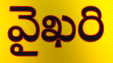
వైఖరి